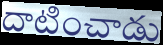
దాటించాడు